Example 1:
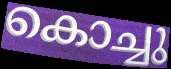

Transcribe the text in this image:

കൊച്ചു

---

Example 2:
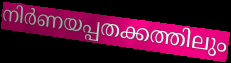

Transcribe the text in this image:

നിർണയപ്പതക്കത്തിലും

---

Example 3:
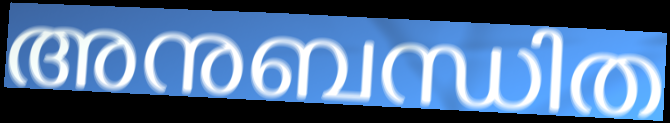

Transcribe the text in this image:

അനുബന്ധിത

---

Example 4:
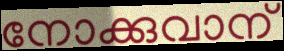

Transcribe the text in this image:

നോക്കുവാന്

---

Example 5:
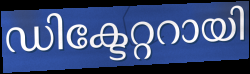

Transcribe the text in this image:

ഡിക്ടേറ്ററായി